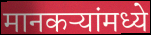
मानकऱ्यांमध्ये